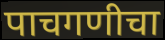
पाचगणीचा